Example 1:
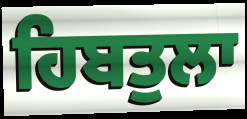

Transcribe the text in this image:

ਹਿਬਤੁਲਾ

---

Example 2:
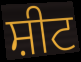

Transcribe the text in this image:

ਸ਼ੀਟ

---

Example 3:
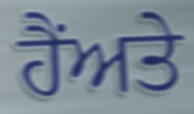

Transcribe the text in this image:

ਹੈਂਅਤੇ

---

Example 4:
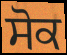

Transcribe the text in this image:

ਸੋਕ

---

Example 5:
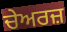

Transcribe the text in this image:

ਚੇਅਰਜ਼